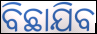
ବିଛାଯିବ